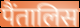
पैंतालिस